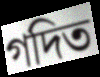
গদিত